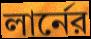
লার্নের